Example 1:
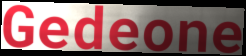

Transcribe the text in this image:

Gedeone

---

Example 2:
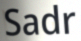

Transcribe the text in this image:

Sadr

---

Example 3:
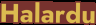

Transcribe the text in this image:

Halardu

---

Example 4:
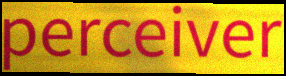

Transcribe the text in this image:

perceiver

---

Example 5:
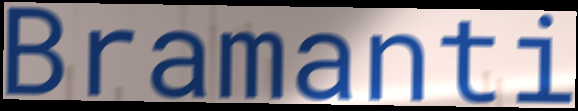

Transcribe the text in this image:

Bramanti